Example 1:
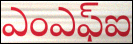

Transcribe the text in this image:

ఎంఎఫ్ఐ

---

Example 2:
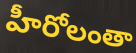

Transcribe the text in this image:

హీరోలంతా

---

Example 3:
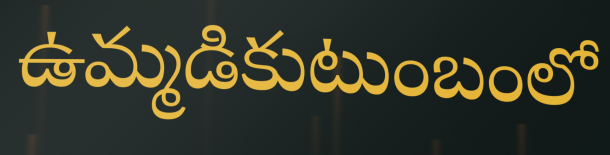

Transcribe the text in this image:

ఉమ్మడికుటుంబంలో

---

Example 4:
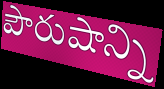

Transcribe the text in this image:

పౌరుషాన్ని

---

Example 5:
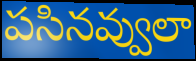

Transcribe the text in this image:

పసినవ్వులా